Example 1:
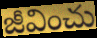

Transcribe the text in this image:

జీవించు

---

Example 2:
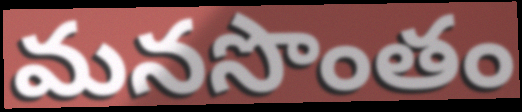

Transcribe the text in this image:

మనసొంతం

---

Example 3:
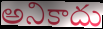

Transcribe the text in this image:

అనికాదు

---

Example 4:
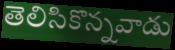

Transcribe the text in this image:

తెలిసికొన్నవాడు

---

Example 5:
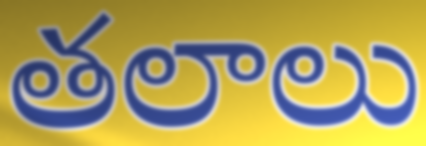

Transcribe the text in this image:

తలాలు